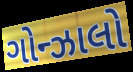
ગોન્ઝાલો